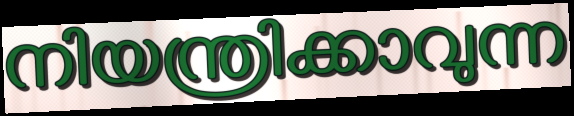
നിയന്ത്രിക്കാവുന്ന